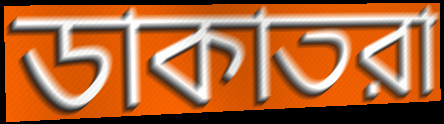
ডাকাতরা